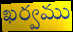
ఖర్వము